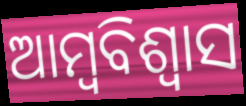
ଆମ୍ବବିଶ୍ଵାସ